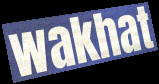
wakhat